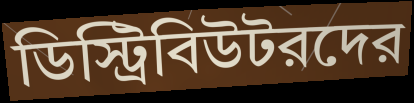
ডিস্ট্রিবিউটরদের